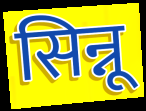
सिन्नू